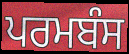
ਪਰਮਬੰਸ